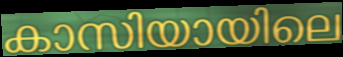
കാസിയായിലെ